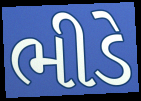
ભીડે